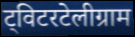
ट्विटरटेलीग्राम